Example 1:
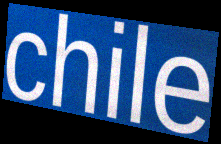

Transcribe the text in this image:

chile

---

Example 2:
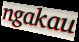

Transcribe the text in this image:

ngakau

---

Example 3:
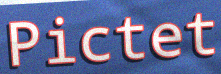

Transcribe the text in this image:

Pictet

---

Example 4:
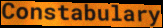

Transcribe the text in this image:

Constabulary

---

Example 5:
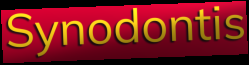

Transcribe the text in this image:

Synodontis